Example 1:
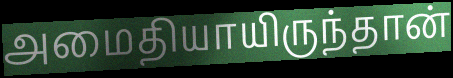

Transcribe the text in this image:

அமைதியாயிருந்தான்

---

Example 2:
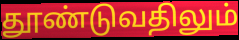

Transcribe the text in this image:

தூண்டுவதிலும்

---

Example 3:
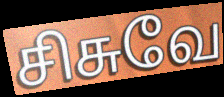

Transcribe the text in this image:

சிசுவே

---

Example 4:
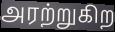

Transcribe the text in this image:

அரற்றுகிற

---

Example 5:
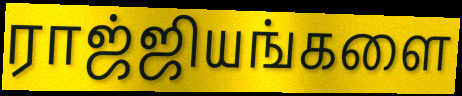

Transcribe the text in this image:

ராஜ்ஜியங்களை